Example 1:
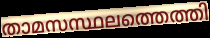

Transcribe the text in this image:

താമസസ്ഥലത്തെത്തി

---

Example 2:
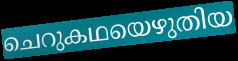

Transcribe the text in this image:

ചെറുകഥയെഴുതിയ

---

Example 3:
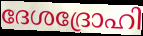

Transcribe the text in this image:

ദേശദ്രോഹി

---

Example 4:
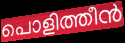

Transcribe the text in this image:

പൊളിത്തീൻ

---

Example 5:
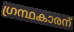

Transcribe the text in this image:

ഗ്രന്ഥകാരന്